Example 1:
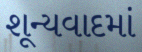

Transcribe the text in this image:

શૂન્યવાદમાં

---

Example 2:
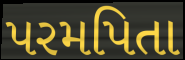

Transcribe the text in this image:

પરમપિતા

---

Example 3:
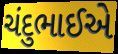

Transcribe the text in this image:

ચંદુભાઈએ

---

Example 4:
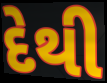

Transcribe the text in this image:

દેથી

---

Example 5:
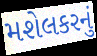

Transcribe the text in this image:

મશેલકરનું